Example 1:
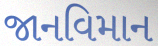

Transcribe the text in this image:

જાનવિમાન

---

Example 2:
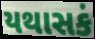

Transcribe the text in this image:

યથાસકં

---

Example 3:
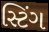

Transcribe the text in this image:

સ્ટિંગ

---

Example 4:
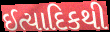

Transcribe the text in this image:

ઈત્યાદિકથી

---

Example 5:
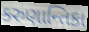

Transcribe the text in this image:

કરુણાન્તિકા